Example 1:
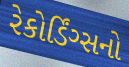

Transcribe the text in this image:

રેકોર્ડિંગ્સનો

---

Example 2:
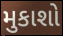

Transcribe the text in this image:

મુકાશો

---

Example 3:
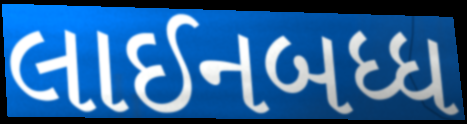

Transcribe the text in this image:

લાઈનબધ્ધ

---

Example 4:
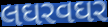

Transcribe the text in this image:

લઘરવઘર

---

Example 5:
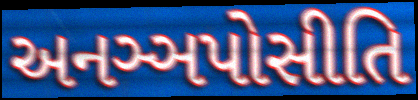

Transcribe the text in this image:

અનઞ્ઞપોસીતિ